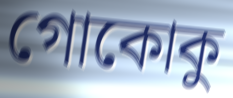
গোকোকু